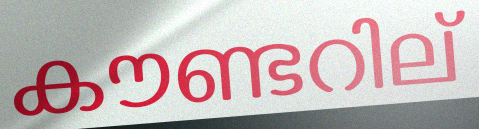
കൗണ്ടറില്